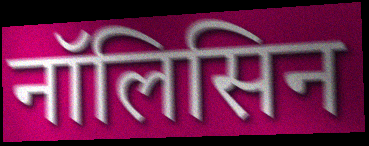
नॉलिसिन